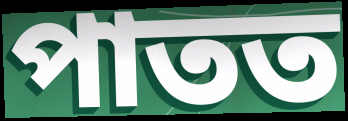
পাতত